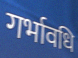
गर्भावधि